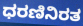
ಧರಣಿನಿರತ